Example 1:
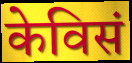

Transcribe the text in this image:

केविसं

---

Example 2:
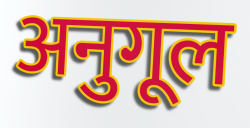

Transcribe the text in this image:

अनुगूल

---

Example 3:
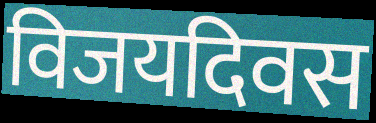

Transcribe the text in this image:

विजयदिवस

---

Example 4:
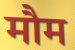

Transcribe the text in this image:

मौम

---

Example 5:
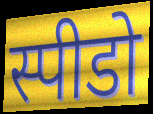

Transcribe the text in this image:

स्पीडो